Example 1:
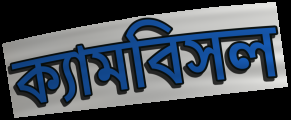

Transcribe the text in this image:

ক্যামবিসল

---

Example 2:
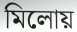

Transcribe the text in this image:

মিলোয়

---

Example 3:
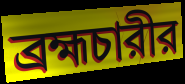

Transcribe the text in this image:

ব্রহ্মচারীর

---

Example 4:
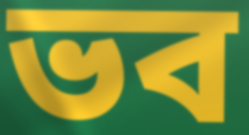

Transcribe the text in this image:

ভব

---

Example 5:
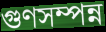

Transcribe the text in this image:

গুণসম্পন্ন